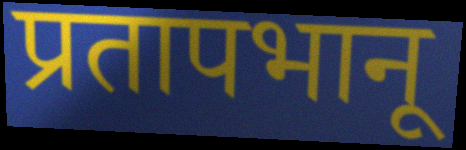
प्रतापभानू